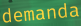
demanda